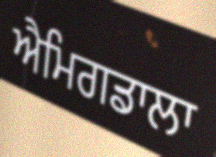
ਐਮਿਗਡਾਲਾ